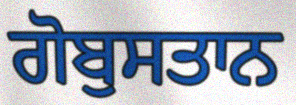
ਗੋਬੁਸਤਾਨ